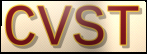
CVST